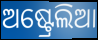
ଅଷ୍ଟ୍ରେଲିଆ